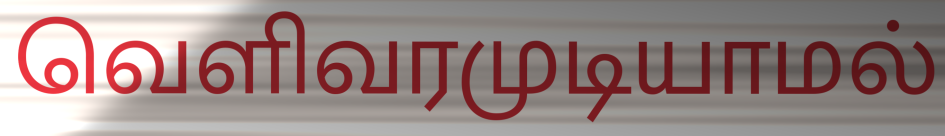
வெளிவரமுடியாமல்